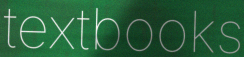
textbooks